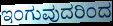
ಇಂಗುವುದರಿಂದ